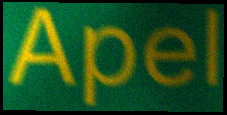
Apel